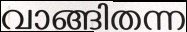
വാങ്ങിതന്ന